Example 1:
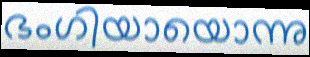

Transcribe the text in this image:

ഭംഗിയായൊന്നു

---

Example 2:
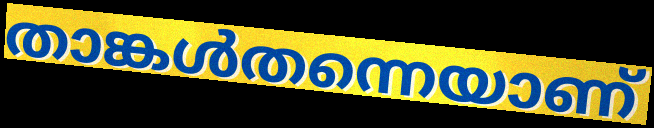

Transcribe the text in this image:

താങ്കൾതന്നെയാണ്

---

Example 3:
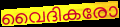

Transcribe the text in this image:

വൈദികരോ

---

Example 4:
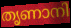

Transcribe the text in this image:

തൃണാനി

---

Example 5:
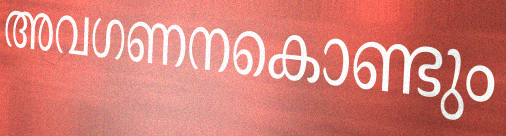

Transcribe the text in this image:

അവഗണനകൊണ്ടും